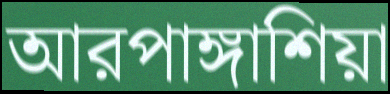
আরপাঙ্গাশিয়া